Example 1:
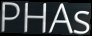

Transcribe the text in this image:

PHAs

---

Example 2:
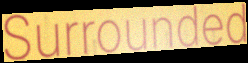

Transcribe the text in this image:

Surrounded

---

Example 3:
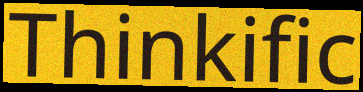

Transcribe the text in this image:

Thinkific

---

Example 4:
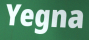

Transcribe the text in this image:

Yegna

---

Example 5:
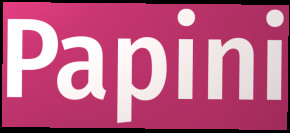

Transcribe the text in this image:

Papini